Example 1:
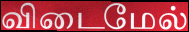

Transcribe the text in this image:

விடைமேல்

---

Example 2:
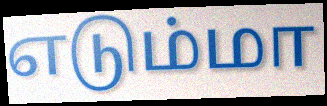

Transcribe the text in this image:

எடும்மா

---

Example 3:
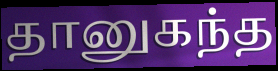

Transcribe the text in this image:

தானுகந்த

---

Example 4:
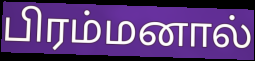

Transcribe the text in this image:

பிரம்மனால்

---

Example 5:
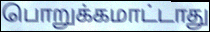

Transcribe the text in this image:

பொறுக்கமாட்டாது